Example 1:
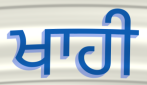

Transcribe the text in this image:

ਖਾਹੀ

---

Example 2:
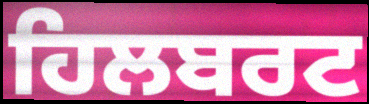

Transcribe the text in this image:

ਹਿਲਬਰਟ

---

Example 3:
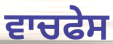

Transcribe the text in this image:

ਵਾਚਫੇਸ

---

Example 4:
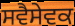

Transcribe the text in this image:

ਸਵੈਸੇਵਕ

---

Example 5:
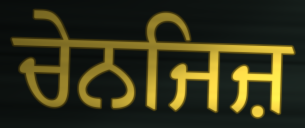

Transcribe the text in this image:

ਚੇਨਜਿਜ਼